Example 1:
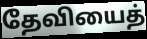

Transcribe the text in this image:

தேவியைத்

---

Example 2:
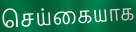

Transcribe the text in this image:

செய்கையாக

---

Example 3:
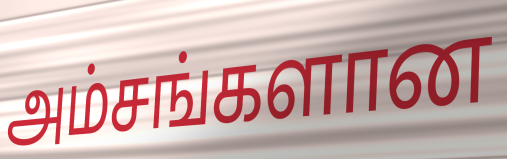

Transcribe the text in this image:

அம்சங்களான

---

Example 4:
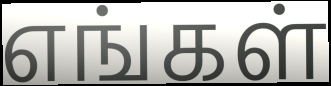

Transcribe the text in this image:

எங்கள்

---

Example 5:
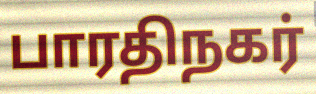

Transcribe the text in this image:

பாரதிநகர்